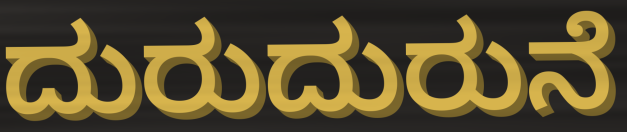
ದುರುದುರುನೆ